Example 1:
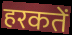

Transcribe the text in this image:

हरकतें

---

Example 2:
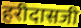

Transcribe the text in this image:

हरीदासजी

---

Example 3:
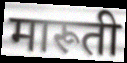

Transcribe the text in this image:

मारूती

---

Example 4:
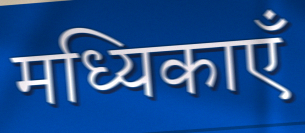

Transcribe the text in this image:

मध्यिकाएँ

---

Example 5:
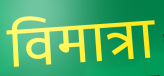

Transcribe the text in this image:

विमात्रा